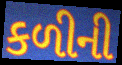
કળીની